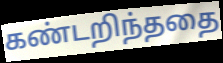
கண்டறிந்ததை